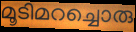
മൂടിമറച്ചൊരു